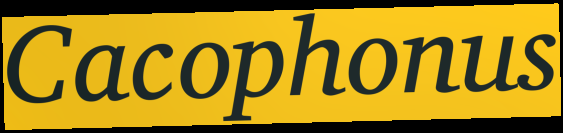
Cacophonus